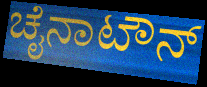
ಚೈನಾಟೌನ್